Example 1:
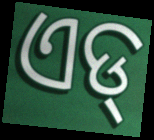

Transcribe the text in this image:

ଏଡ୍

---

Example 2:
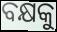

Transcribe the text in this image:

ବକ୍ଷକୁ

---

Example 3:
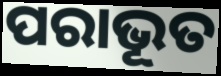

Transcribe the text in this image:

ପରାଭୂତ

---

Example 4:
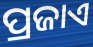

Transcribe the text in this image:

ପ୍ରଜାଏ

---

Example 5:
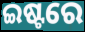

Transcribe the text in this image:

ଇଷ୍ଟରେ